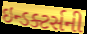
ઇન્ડક્ટર્સની